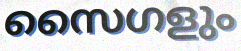
സൈഗളും